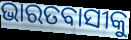
ଭାରତବାସୀକୁ